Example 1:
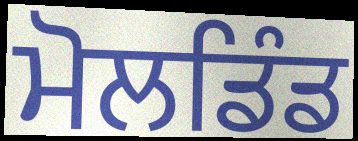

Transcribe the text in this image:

ਮੋਲਡਿੰਡ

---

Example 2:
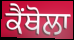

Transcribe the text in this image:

ਕੈਂਥੋਲਾ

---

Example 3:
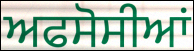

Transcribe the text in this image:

ਅਫਸੋਸੀਆਂ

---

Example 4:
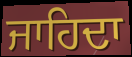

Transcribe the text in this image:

ਜਾਹਿਦਾ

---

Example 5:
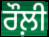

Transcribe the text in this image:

ਰੌਲ਼ੀ